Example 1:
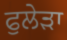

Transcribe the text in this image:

ਫੁਲੇੜਾ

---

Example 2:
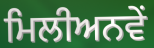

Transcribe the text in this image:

ਮਿਲੀਅਨਵੇਂ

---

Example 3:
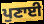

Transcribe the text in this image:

ਪੁਣਾਈ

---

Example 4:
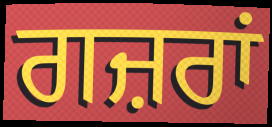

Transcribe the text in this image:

ਗਜ਼ਰਾਂ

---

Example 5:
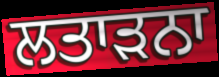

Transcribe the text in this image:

ਲਤਾੜਨਾ